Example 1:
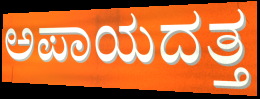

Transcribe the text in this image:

ಅಪಾಯದತ್ತ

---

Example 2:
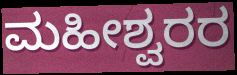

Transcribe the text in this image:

ಮಹೀಶ್ವರರ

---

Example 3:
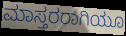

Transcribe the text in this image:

ಮಾಸ್ತರರಾಗಿಯೂ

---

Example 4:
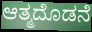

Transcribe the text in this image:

ಆತ್ಮದೊಡನೆ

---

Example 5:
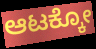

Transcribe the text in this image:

ಆಟಕ್ಕೋ